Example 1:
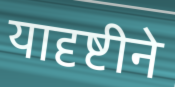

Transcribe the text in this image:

यादृष्टीने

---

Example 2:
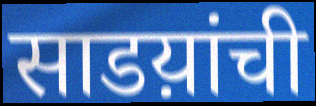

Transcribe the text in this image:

साडय़ांची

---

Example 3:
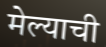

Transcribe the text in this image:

मेल्याची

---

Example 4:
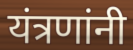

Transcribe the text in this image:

यंत्रणांनी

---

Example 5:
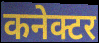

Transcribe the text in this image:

कनेक्टर